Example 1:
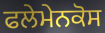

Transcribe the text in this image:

ਫਲੇਮੇਨਕੋਸ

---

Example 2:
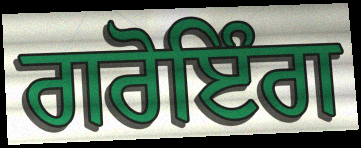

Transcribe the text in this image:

ਗਰੋਇੰਗ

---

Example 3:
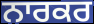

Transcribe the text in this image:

ਨਾਰਕਰ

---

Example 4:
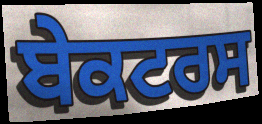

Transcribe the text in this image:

ਬੇਕਟਰਸ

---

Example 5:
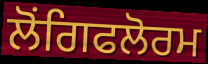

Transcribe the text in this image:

ਲੋਂਗਿਫਲੋਰਮ